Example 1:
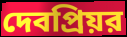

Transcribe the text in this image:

দেবপ্রিয়র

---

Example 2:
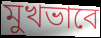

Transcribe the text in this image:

মুখভাবে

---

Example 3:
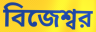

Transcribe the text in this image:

বিজেশ্বর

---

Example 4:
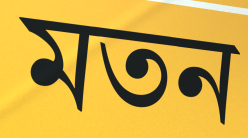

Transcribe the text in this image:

মতন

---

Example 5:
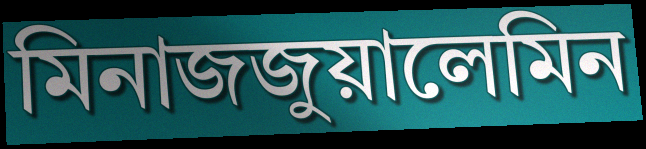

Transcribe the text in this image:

মিনাজজুয়ালেমিন